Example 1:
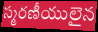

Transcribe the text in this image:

స్మరణీయులైన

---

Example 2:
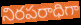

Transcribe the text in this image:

నిరపరాధిగా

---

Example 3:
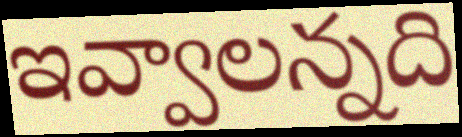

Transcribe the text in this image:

ఇవ్వాలన్నది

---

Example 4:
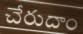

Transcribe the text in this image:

చేరుదాం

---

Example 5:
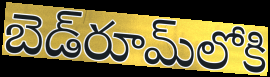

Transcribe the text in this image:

బెడ్‌రూమ్‌లోకి